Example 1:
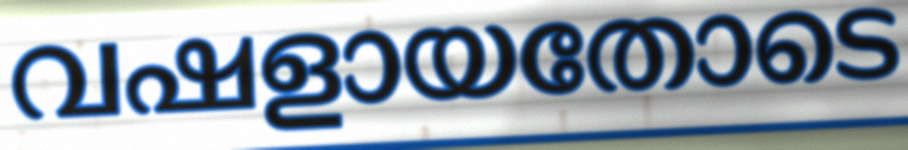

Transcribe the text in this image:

വഷളായതോടെ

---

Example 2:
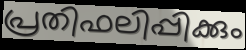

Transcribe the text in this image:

പ്രതിഫലിപ്പിക്കും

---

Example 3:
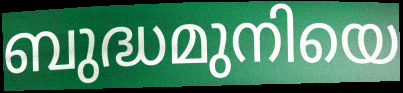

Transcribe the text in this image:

ബുദ്ധമുനിയെ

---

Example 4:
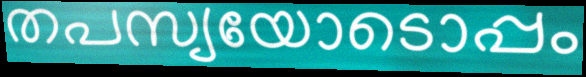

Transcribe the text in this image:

തപസ്യയോടൊപ്പം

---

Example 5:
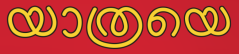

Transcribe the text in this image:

യാത്രയെ